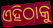
ଏହିଠାକୁ